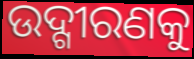
ଉଦ୍ଗୀରଣକୁ